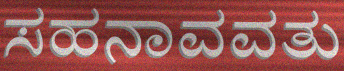
ಸಹನಾವವತು